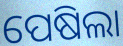
ପେଷିଲା